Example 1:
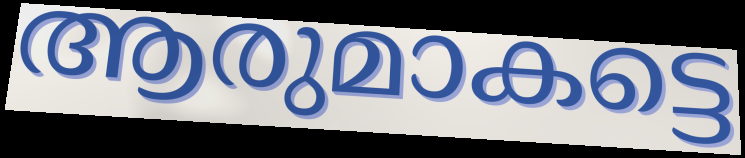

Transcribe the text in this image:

ആരുമാകട്ടെ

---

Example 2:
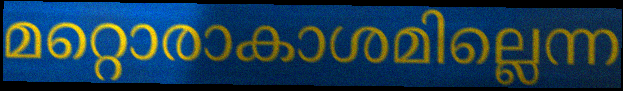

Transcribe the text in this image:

മറ്റൊരാകാശമില്ലെന്ന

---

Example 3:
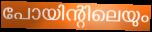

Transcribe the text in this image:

പോയിന്റിലെയും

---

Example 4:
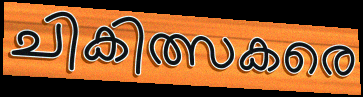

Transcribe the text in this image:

ചികിത്സകരെ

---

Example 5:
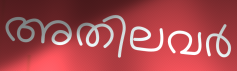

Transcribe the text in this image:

അതിലവർ